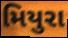
મિયુરા